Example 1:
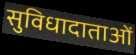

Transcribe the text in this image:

सुविधादाताओं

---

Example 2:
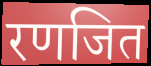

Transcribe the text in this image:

रणजित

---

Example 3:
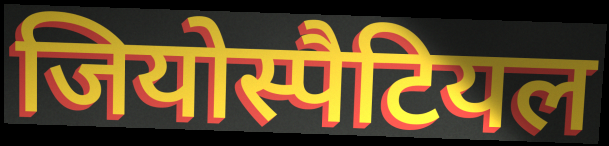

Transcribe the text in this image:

जियोस्पैटियल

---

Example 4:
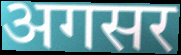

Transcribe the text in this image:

अगसर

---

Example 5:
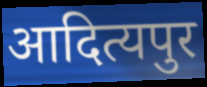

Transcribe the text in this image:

आदित्यपुर